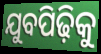
ଯୁବପିଢ଼ିକୁ